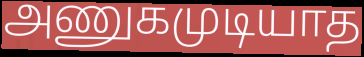
அணுகமுடியாத